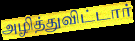
அழித்துவிட்டார்